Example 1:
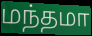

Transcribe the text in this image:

மந்தமா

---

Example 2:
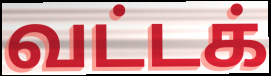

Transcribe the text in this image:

வட்டக்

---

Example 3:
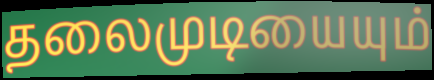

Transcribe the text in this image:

தலைமுடியையும்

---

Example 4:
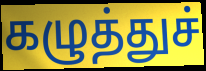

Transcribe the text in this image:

கழுத்துச்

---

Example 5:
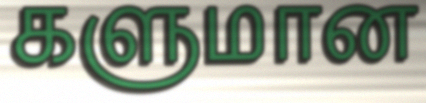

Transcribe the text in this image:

களுமான